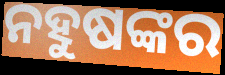
ନହୁଷଙ୍କର